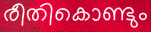
രീതികൊണ്ടും